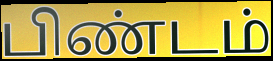
பிண்டம்